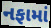
નફામાં